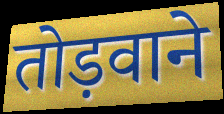
तोड़वाने